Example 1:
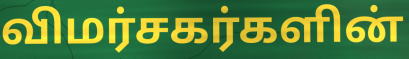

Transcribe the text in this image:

விமர்சகர்களின்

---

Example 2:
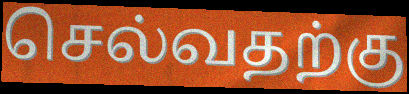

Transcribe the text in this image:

செல்வதற்கு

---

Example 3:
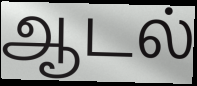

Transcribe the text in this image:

ஆடல்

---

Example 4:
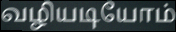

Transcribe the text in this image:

வழியடியோம்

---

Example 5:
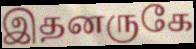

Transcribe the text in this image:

இதனருகே